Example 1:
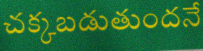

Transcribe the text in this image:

చక్కబడుతుందనే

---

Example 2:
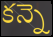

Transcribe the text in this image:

కన్నె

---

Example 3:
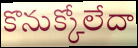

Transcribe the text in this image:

కొనుక్కోలేదా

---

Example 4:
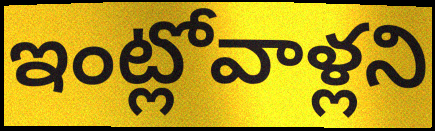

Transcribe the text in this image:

ఇంట్లోవాళ్లని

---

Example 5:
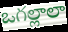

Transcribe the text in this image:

ఒగల్లాలా